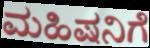
ಮಹಿಷನಿಗೆ